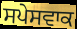
ਸਪੇਸਵਾਕ